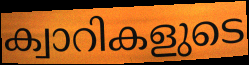
ക്വാറികളുടെ